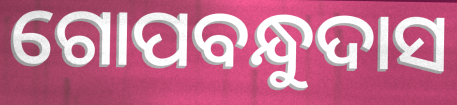
ଗୋପବନ୍ଧୁଦାସ